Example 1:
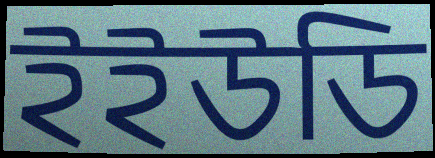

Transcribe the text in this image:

ইইউডি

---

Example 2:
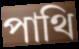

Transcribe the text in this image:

পাথি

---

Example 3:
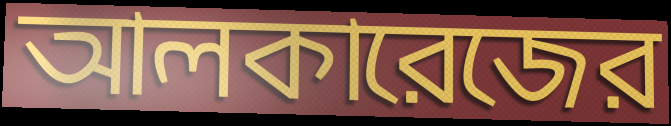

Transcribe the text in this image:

আলকারেজের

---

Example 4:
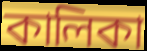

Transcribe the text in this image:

কালিকা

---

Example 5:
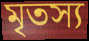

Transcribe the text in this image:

মৃতস্য